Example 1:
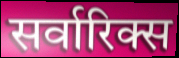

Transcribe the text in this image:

सर्वारिक्स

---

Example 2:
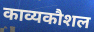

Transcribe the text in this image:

काव्यकौशल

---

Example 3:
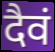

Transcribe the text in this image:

दैवं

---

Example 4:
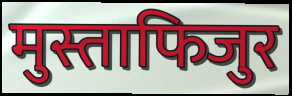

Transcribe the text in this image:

मुस्ताफिजुर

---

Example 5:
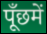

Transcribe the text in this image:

पूँछमें